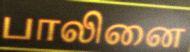
பாலினை